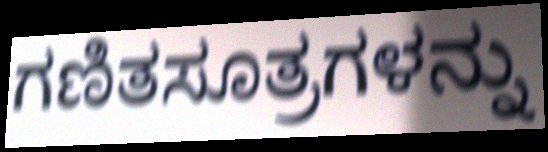
ಗಣಿತಸೂತ್ರಗಳನ್ನು